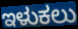
ಇಳುಕಲು